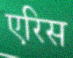
एरिस